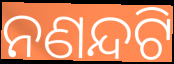
ନଣନ୍ଦଟି